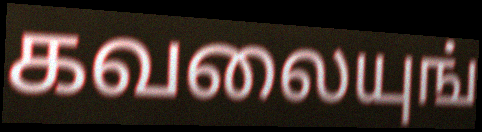
கவலையுங்